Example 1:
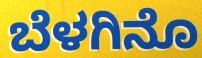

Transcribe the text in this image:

ಬೆಳಗಿನೊ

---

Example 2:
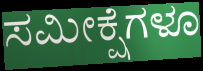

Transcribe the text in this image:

ಸಮೀಕ್ಷೆಗಳೂ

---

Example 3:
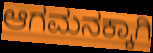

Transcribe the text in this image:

ಆಗಮನಕ್ಕಾಗಿ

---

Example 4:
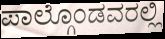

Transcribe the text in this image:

ಪಾಲ್ಗೊಂಡವರಲ್ಲಿ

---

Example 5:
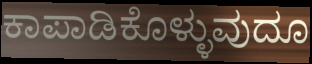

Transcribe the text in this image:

ಕಾಪಾಡಿಕೊಳ್ಳುವುದೂ